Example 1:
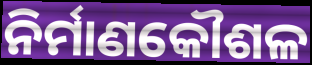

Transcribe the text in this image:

ନିର୍ମାଣକୌଶଳ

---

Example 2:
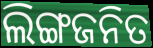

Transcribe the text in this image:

ଲିଙ୍ଗଜନିତ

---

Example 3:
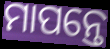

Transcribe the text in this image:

ମାପନ୍ତେ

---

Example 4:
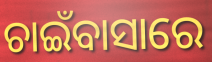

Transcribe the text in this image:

ଚାଇଁବାସାରେ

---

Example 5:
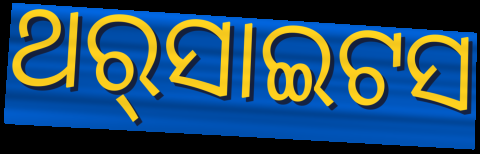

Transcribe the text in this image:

ଥର୍‌ସାଇଟସ